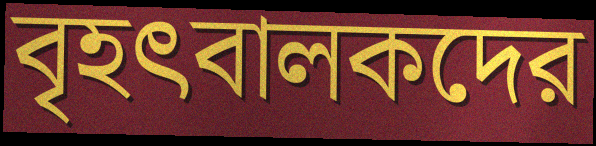
বৃহৎবালকদের